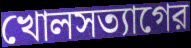
খোলসত্যাগের